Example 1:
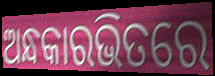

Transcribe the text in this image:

ଅନ୍ଧକାରଭିତରେ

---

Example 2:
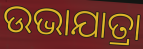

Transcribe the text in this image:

ଉଭାଯାତ୍ରା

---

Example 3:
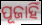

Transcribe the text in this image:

ପୂଜାହିଁ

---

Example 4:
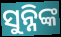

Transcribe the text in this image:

ସୁନ୍ନିଙ୍କ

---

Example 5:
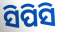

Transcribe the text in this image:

ସିପିସି